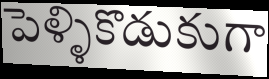
పెళ్ళికొడుకుగా